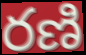
రణి